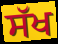
ਸੱਖ